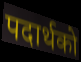
पदार्थको